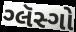
ગ્લૅસ્ગો